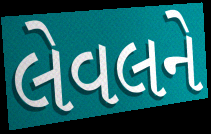
લેવલને